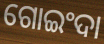
ଗୋଇଂଦା